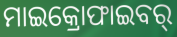
ମାଇକ୍ରୋଫାଇବର୍